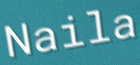
Naila